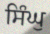
ਸਿੰਘੁ